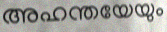
അഹന്തയേയും